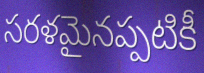
సరళమైనప్పటికీ